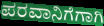
ಪರವಾನಿಗೆಗಾಗಿ